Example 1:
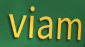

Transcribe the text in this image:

viam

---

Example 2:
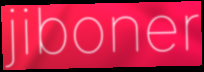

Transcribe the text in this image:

jiboner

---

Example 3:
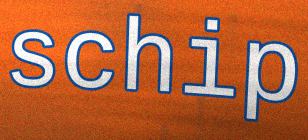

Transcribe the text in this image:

schip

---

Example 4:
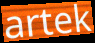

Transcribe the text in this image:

artek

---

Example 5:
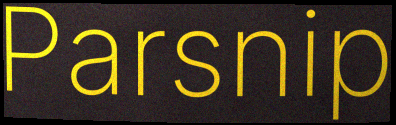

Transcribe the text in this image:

Parsnip